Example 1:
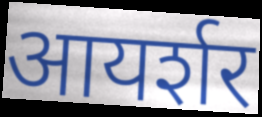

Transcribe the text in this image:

आयर्शर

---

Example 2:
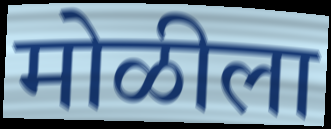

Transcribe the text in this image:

मोळीला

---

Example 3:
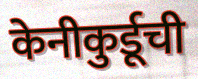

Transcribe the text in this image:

केनीकुर्डूची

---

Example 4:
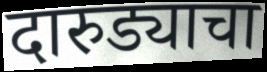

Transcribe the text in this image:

दारुड्याचा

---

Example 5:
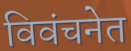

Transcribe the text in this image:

विवंचनेत